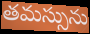
తమస్సును